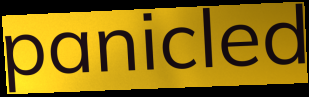
panicled